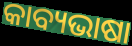
କାବ୍ୟଭାଷା